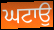
ਘਟਾਉ